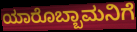
ಯಾರೊಬ್ಬಾಮನಿಗೆ